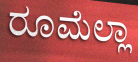
ರೂಮೆಲ್ಲಾ